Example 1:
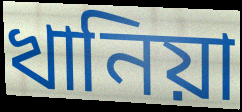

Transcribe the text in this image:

খানিয়া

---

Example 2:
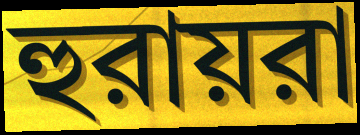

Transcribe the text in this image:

হুরায়রা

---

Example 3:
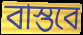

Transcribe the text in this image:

বাস্তবে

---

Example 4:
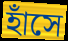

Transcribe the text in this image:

হাঁসে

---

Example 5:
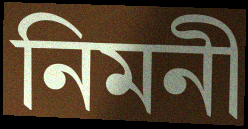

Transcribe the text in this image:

নিমনী